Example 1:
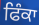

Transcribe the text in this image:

ਫਿੰਕਾ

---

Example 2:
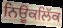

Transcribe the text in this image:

ਨਿਊਕਲਿੱਕ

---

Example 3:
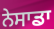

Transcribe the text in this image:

ਨੇਸਾਡਾ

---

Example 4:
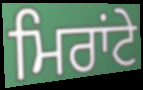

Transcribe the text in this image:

ਮਿਰਾਂਟੇ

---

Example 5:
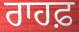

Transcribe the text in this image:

ਰਾਹਫ਼